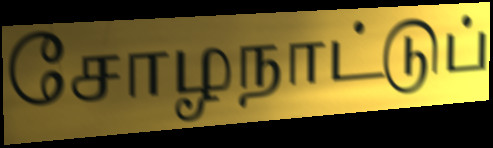
சோழநாட்டுப்